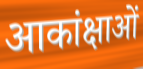
आकांक्षाओं